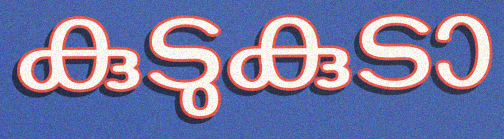
കുടുകുടാ